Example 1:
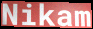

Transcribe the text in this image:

Nikam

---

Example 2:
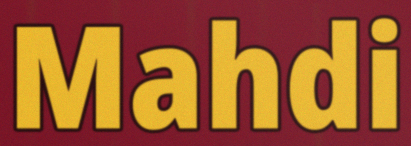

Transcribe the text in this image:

Mahdi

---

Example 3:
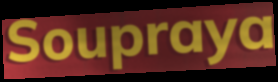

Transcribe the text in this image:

Soupraya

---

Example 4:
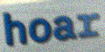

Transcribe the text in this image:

hoar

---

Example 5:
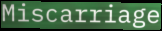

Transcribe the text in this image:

Miscarriage